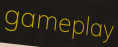
gameplay